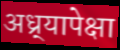
अध्र्यापेक्षा